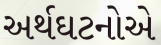
અર્થઘટનોએ